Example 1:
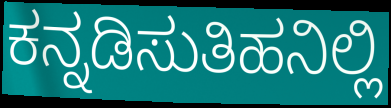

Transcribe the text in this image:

ಕನ್ನಡಿಸುತಿಹನಿಲ್ಲಿ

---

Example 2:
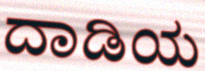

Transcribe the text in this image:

ದಾಡಿಯ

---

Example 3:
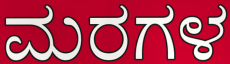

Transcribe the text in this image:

ಮರಗಳ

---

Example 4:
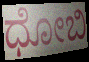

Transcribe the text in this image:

ಧೋಬಿ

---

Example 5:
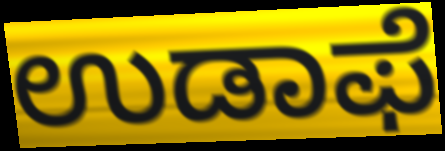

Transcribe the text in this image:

ಉಡಾಫೆ